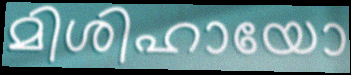
മിശിഹായോ